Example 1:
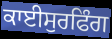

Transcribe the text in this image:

ਕਾਈਸੁਰਫਿੰਗ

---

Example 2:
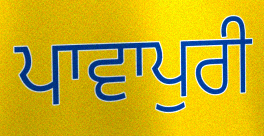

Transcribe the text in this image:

ਪਾਵਾਪੁਰੀ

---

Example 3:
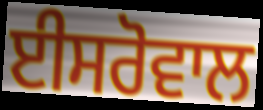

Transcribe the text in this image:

ਈਸਰੋਵਾਲ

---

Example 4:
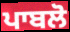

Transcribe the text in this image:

ਪਾਬਲੋ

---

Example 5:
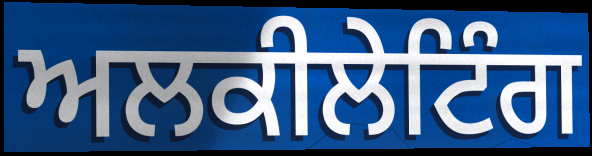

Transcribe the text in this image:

ਅਲਕੀਲੇਟਿੰਗ